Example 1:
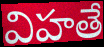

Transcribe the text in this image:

విహతే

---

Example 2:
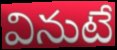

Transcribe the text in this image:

వినుటే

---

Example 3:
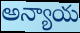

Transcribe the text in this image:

అన్యాయ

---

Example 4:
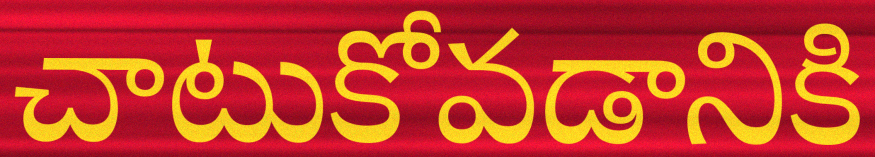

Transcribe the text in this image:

చాటుకోవడానికి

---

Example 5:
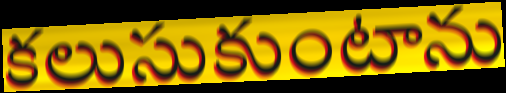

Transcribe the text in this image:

కలుసుకుంటాను